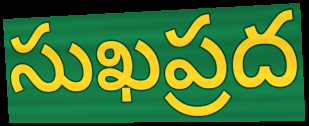
సుఖప్రద